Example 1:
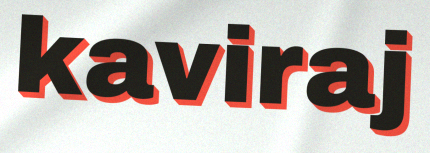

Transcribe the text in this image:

kaviraj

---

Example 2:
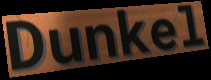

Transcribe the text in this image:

Dunkel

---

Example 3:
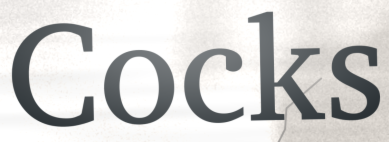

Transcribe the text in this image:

Cocks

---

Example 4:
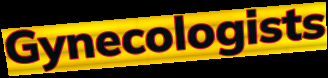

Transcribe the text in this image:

Gynecologists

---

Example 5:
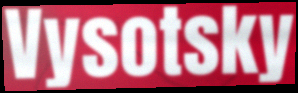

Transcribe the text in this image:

Vysotsky